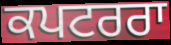
ਕਪਟਰਰਾ